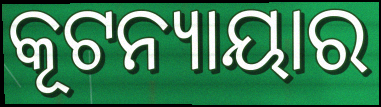
କୂଟନ୍ୟାୟାର